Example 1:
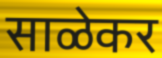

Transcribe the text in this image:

साळेकर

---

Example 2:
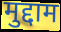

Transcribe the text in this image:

मुद्दाम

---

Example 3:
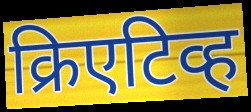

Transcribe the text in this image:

क्रिएटिव्ह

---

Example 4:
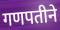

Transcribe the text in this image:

गणपतीने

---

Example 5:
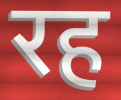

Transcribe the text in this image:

रह